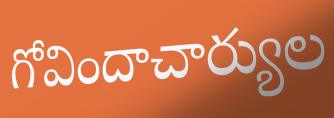
గోవిందాచార్యుల